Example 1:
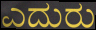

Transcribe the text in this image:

ಎದುರು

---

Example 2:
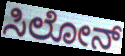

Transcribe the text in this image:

ಸಿಲೋನ್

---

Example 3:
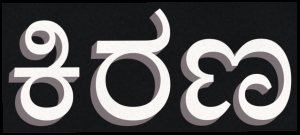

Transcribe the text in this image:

ಕಿರಣ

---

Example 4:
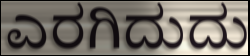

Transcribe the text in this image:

ಎರಗಿದುದು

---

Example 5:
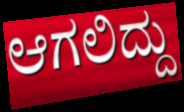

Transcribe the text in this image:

ಆಗಲಿದ್ದು